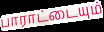
பாராட்டையும்